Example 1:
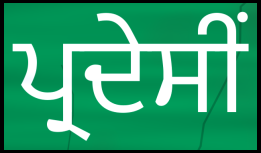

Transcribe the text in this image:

ਪ੍ਰਦੇਸੀਂ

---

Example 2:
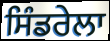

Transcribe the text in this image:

ਸਿੰਡਰੇਲਾ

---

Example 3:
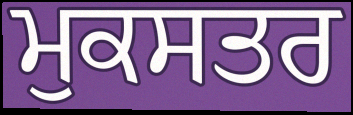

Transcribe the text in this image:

ਮੁਕਸਤਰ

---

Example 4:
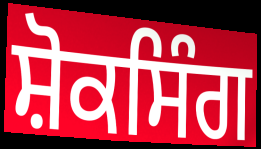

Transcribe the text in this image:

ਸ਼ੋਕਸਿੰਗ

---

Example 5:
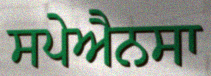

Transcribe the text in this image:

ਸਪੇਐਨਸਾ